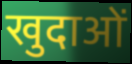
खुदाओं